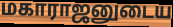
மகாராஜனுடைய